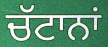
ਚੱਟਾਨਾਂ